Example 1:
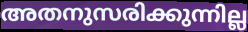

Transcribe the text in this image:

അതനുസരിക്കുന്നില്ല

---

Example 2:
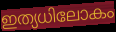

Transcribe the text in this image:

ഇത്യധിലോകം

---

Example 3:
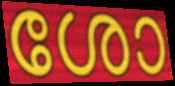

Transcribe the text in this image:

ശോ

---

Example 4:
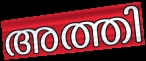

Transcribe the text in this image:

അത്തി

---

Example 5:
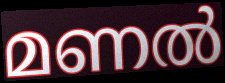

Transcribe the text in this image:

മണൽ